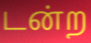
டன்ற